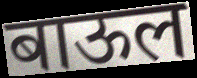
बाऊल